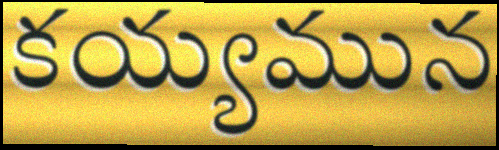
కయ్యమున